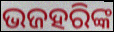
ଭଜହରିଙ୍କ